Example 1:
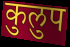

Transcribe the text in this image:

कुलुप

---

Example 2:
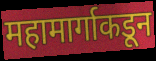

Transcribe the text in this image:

महामार्गाकडून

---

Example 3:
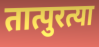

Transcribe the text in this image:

तात्पुरत्या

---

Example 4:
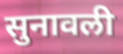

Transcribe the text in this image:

सुनावली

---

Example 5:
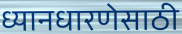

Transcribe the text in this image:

ध्यानधारणेसाठी